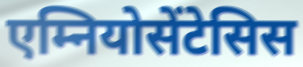
एम्नियोसेंटेसिस